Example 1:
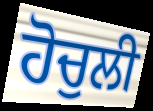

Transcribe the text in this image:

ਹੋਚੁਲੀ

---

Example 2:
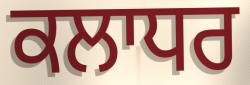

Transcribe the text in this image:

ਕਲਾਧਰ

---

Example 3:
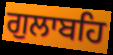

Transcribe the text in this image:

ਗੁਲਾਬਹਿ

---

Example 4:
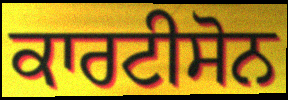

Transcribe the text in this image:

ਕਾਰਟੀਸੋਨ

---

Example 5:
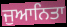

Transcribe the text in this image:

ਜੁਆਨਿਤਾ